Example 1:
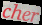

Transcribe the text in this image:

cher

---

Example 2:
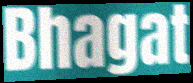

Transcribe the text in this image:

Bhagat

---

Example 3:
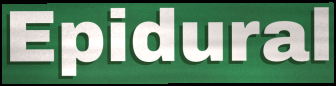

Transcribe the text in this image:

Epidural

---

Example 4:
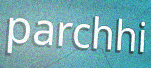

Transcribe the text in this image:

parchhi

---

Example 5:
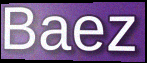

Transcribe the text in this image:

Baez